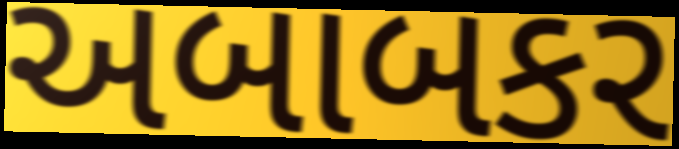
અબાબકર